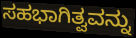
ಸಹಭಾಗಿತ್ವವನ್ನು